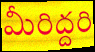
మీరిద్దరి